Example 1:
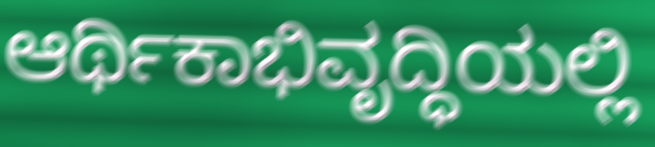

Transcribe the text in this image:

ಆರ್ಥಿಕಾಭಿವೃದ್ಧಿಯಲ್ಲಿ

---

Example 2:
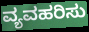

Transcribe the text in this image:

ವ್ಯವಹರಿಸು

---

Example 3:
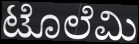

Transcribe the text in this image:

ಟೊಲೆಮಿ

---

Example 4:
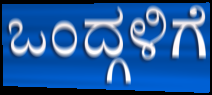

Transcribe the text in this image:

ಒಂದ್ಗಳಿಗೆ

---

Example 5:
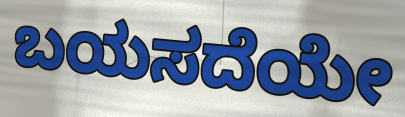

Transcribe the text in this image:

ಬಯಸದೆಯೇ